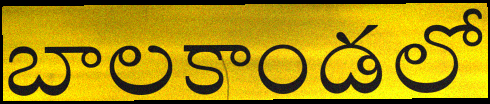
బాలకాండలో